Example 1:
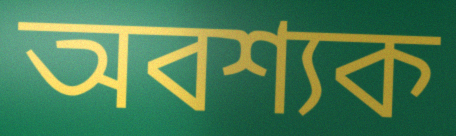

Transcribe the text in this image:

অবশ্যক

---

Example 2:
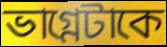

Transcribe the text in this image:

ভাগ্নেটাকে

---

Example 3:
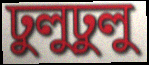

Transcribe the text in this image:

ঢুলুঢুলু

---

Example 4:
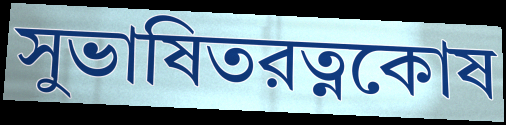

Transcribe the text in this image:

সুভাষিতরত্নকোষ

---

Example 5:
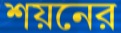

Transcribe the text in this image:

শয়নের